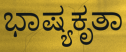
ಭಾಷ್ಯಕೃತಾ